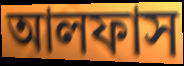
আলফাস